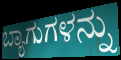
ಬ್ಯಾಗುಗಳನ್ನು